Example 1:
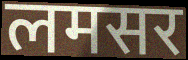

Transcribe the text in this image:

लमसर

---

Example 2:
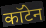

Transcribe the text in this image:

कॉटेन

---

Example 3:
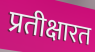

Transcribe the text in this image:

प्रतीक्षारत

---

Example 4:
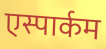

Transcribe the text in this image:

एस्पार्कम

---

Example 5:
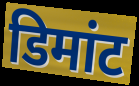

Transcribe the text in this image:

डिमांट